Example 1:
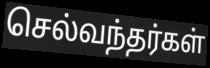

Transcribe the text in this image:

செல்வந்தர்கள்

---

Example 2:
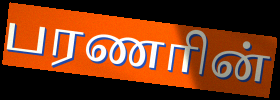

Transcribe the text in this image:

பரணரின்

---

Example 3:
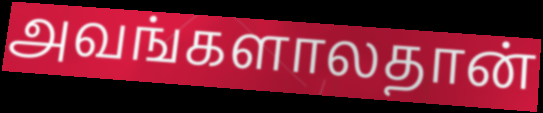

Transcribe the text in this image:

அவங்களாலதான்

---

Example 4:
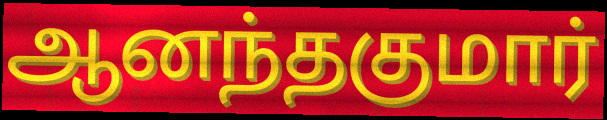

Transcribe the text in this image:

ஆனந்தகுமார்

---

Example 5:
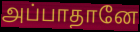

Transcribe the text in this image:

அப்பாதானே